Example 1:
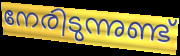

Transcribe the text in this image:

നേരിടുന്നുണ്ട്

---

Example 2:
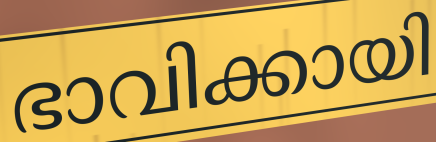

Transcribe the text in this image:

ഭാവിക്കായി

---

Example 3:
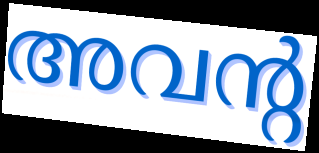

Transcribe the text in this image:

അവന്റ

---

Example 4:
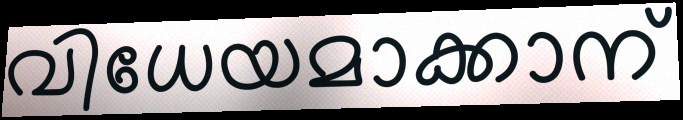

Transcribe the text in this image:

വിധേയമാക്കാന്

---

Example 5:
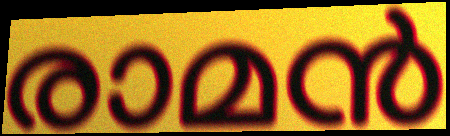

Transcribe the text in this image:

രാമൻ